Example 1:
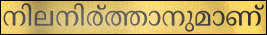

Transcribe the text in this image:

നിലനിര്ത്താനുമാണ്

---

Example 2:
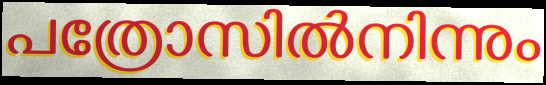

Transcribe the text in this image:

പത്രോസിൽനിന്നും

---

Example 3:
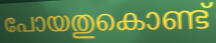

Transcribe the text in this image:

പോയതുകൊണ്ട്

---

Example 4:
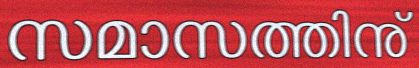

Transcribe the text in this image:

സമാസത്തിനു്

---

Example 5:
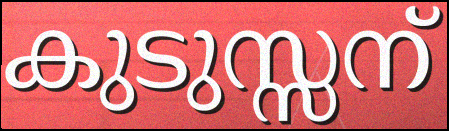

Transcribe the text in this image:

കുടുസ്സന്